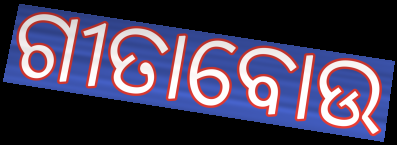
ଗୀତାବୋଉ